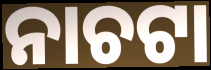
ନାଚଟା